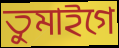
তুমাইগে